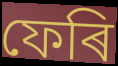
ফেৰি